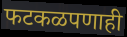
फटकळपणाही